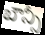
బౌన్సీ